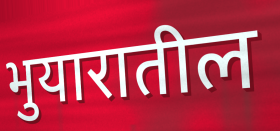
भुयारातील